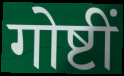
गोष्टीं